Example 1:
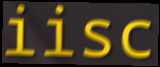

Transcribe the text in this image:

iisc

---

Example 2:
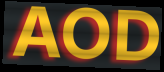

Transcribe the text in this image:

AOD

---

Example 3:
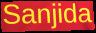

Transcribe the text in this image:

Sanjida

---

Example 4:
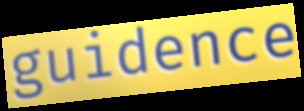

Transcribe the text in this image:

guidence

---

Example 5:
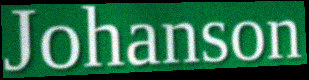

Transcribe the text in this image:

Johanson